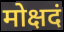
मोक्षदं